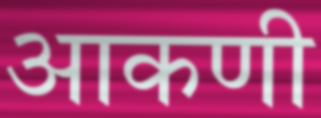
आकणी